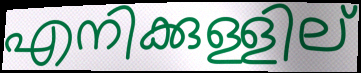
എനിക്കുള്ളില്